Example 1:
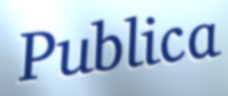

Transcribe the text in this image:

Publica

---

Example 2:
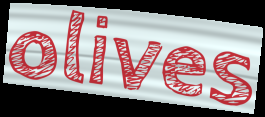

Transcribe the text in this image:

olives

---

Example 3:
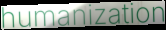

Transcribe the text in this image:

humanization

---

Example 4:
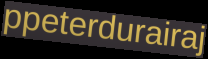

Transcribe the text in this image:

ppeterdurairaj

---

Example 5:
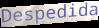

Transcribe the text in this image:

Despedida